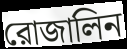
রোজালিন